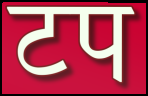
टप